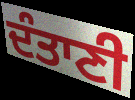
ਦੰਤਾਣੀ